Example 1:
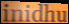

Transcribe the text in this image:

inidhu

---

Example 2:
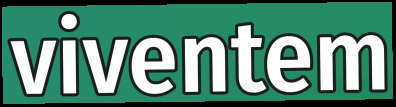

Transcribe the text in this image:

viventem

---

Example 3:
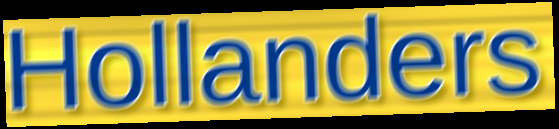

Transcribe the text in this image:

Hollanders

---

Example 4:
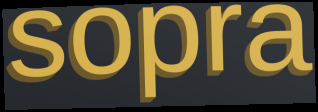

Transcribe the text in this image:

sopra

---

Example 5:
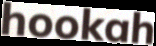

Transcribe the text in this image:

hookah